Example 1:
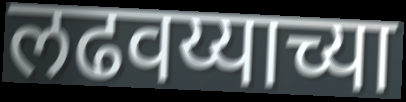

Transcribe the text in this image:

लढवय्याच्या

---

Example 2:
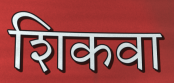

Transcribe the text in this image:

शिकवा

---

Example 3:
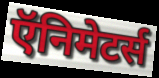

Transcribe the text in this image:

ऍनिमेटर्स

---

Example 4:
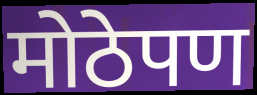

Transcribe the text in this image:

मोठेपण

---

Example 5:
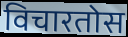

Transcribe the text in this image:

विचारतोस